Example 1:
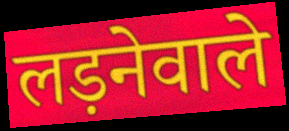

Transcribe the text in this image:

लड़नेवाले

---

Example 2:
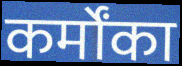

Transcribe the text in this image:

कर्मोंका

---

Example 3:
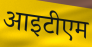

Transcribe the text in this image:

आइटीएम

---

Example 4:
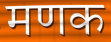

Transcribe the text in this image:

मणक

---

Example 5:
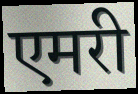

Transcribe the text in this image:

एमरी